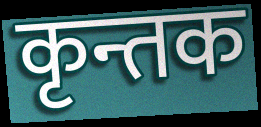
कृन्तक